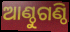
ଆଣ୍ଠୁଗଣ୍ଠି